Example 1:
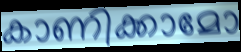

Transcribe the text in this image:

കാണിക്കാമോ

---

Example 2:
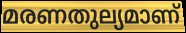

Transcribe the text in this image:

മരണതുല്യമാണ്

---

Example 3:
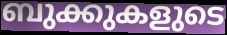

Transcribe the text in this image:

ബുക്കുകളുടെ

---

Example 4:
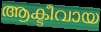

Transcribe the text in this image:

ആക്ടീവായ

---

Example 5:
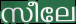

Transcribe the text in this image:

സീലേ